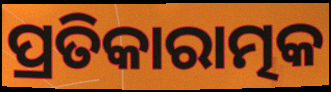
ପ୍ରତିକାରାତ୍ମକ